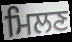
ਮਿਲਣ